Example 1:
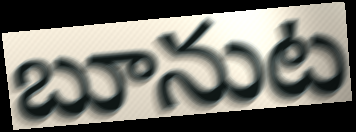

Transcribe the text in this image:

బూనుట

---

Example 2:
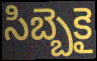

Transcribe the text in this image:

సిబ్బెకై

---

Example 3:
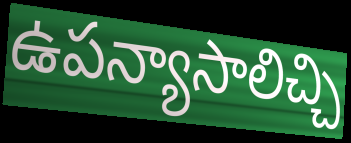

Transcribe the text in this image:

ఉపన్యాసాలిచ్చి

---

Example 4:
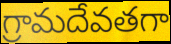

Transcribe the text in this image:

గ్రామదేవతగా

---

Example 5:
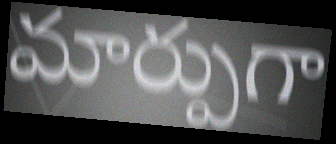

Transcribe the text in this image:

మార్పుగా